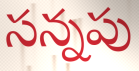
సన్నపు